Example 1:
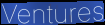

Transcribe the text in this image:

Ventures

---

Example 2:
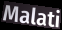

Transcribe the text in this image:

Malati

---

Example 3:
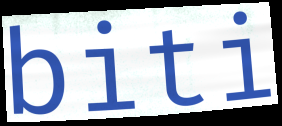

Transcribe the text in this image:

biti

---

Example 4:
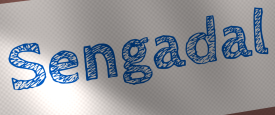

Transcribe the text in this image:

Sengadal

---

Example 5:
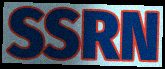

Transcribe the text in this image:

SSRN